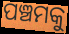
ପଞ୍ଚମକୁ